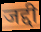
जद्दी